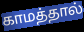
காமத்தால்